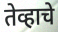
तेव्हाचे